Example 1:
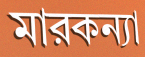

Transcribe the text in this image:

মারকন্যা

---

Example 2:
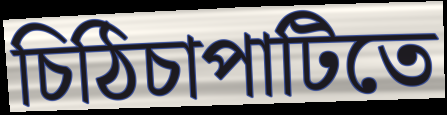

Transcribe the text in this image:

চিঠিচাপাটিতে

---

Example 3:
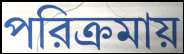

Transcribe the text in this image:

পরিক্রমায়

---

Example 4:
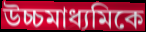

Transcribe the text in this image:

উচ্চমাধ্যমিকে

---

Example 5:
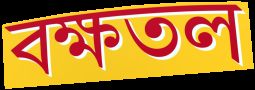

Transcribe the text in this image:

বক্ষতল